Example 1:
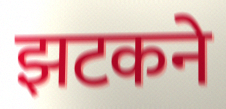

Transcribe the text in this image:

झटकने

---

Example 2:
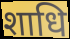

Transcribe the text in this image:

शाधि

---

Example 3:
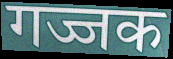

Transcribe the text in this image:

गज्जक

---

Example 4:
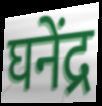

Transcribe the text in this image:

घनेंद्र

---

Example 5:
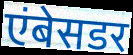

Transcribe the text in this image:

एंबेसडर